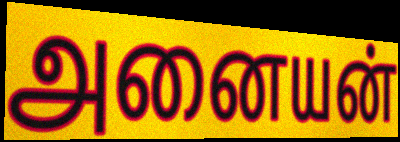
அனையன்